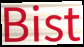
Bist